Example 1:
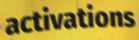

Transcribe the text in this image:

activations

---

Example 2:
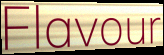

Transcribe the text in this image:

Flavour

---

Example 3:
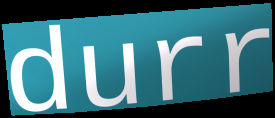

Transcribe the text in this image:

durr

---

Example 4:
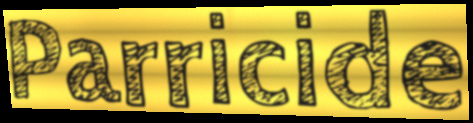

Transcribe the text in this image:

Parricide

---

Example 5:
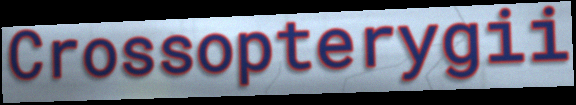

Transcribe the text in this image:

Crossopterygii